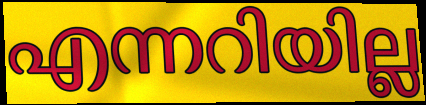
എന്നറിയില്ല